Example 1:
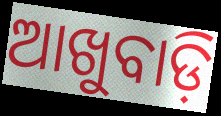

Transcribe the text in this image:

ଆଖୁବାଡ଼ି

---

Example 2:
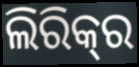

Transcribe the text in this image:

ଲିରିକ୍‍ର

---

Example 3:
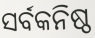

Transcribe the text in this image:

ସର୍ବକନିଷ୍ଠ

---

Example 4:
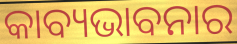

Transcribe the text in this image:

କାବ୍ୟଭାବନାର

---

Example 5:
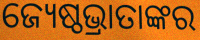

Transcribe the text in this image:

ଜ୍ୟେଷ୍ଠଭ୍ରାତାଙ୍କର